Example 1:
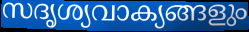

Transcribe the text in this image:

സദൃശ്യവാക്യങ്ങളും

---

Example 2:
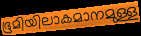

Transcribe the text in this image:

ഭൂമിയിലാകമാനമുള്ള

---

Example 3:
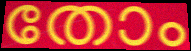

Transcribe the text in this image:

തോം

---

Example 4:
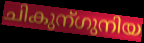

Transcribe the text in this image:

ചികുന്ഗുനിയ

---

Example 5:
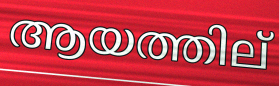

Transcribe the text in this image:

ആയത്തില്